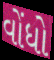
વોંધો